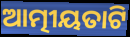
ଆତ୍ମୀୟତାଟି